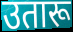
उतारू